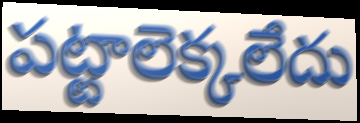
పట్టాలెక్కలేదు